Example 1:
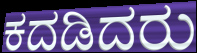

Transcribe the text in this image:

ಕದಡಿದರು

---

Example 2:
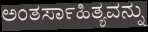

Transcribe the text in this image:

ಅಂತರ್ಸಾಹಿತ್ಯವನ್ನು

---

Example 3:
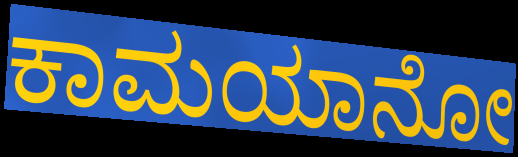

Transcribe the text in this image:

ಕಾಮಯಾನೋ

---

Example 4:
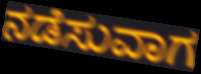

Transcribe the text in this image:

ನಡೆಸುವಾಗ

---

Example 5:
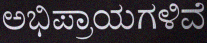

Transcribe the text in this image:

ಅಭಿಪ್ರಾಯಗಳಿವೆ